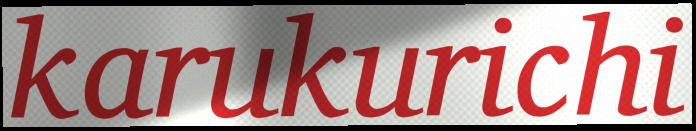
karukurichi